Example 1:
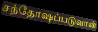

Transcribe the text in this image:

சந்தோஷப்படுவான்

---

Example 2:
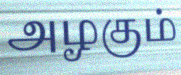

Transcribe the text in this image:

அழகும்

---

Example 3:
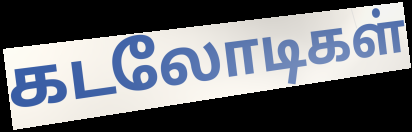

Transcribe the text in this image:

கடலோடிகள்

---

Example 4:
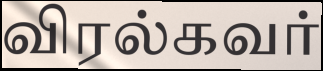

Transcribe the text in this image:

விரல்கவர்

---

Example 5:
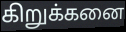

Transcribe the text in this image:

கிறுக்கனை